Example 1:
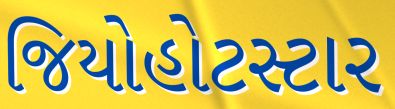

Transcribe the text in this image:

જિયોહોટસ્ટાર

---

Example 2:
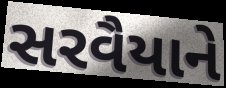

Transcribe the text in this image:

સરવૈયાને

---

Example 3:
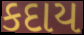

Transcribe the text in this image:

કદાય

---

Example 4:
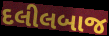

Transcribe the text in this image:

દલીલબાજ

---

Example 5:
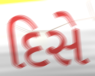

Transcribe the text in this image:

દિસે